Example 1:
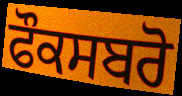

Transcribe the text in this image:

ਫੌਕਸਬਰੋ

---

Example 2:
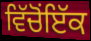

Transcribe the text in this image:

ਵਿੱਚੋਂਇੱਕ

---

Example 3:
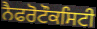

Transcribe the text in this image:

ਨੈਫਰੋਟੌਕਸਿਟੀ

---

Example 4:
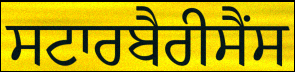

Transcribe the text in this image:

ਸਟਾਰਬੈਰੀਸੈਂਸ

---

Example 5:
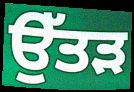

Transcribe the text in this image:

ਉੱਤੜ